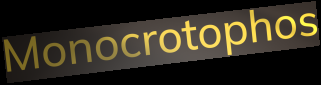
Monocrotophos